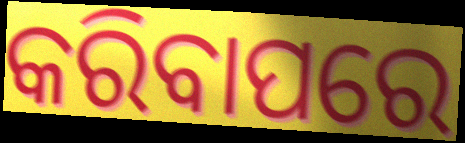
କରିବାପରେ